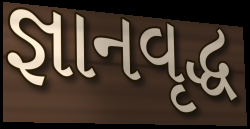
જ્ઞાનવૃદ્ધ